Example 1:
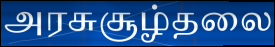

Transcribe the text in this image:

அரசுசூழ்தலை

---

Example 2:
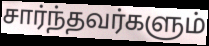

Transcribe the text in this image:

சார்ந்தவர்களும்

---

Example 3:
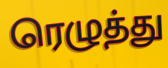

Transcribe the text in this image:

ரெழுத்து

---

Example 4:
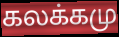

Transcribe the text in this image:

கலக்கமு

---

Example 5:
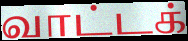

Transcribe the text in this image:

வாட்டக்